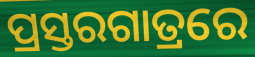
ପ୍ରସ୍ତରଗାତ୍ରରେ